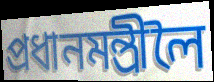
প্ৰধানমন্ত্ৰীলৈ